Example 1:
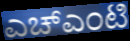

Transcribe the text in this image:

ಎಚ್ಎಂಟಿ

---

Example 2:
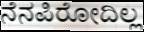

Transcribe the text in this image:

ನೆನಪಿರೋದಿಲ್ಲ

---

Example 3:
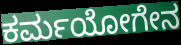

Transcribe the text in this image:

ಕರ್ಮಯೋಗೇನ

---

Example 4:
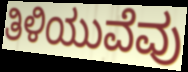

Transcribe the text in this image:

ತಿಳಿಯುವೆವು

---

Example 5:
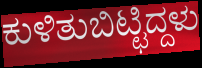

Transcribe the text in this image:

ಕುಳಿತುಬಿಟ್ಟಿದ್ದಳು